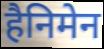
हैनिमेन